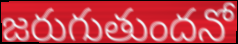
జరుగుతుందనో